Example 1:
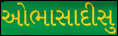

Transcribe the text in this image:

ઓભાસાદીસુ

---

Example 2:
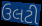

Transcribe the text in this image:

ઉલટી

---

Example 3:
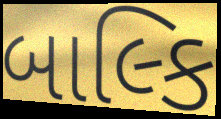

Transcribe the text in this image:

બાલ્કિ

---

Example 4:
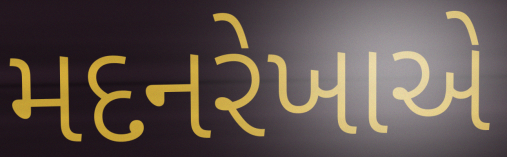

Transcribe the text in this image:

મદનરેખાએ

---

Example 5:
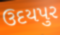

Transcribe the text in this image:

ઉદયપુર